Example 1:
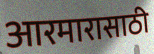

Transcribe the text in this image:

आरमारासाठी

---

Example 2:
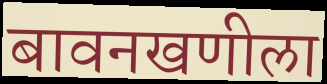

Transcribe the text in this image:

बावनखणीला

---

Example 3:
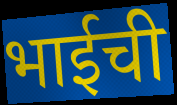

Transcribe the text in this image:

भाईची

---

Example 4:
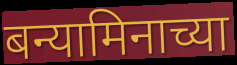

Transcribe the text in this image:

बन्यामिनाच्या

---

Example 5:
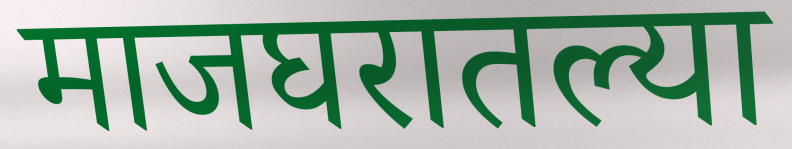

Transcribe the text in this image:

माजघरातल्या